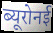
ब्यूरोनई